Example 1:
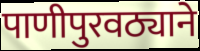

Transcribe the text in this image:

पाणीपुरवठ्याने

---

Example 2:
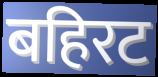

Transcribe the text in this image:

बहिरट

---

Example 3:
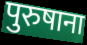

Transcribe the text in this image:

पुरुषाना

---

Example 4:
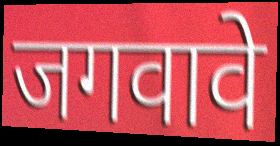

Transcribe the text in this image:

जगवावे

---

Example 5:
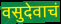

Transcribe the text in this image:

वसुदेवाचं